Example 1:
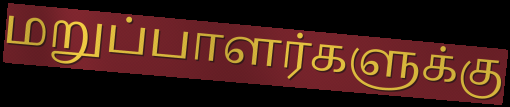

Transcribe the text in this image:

மறுப்பாளர்களுக்கு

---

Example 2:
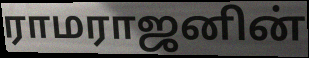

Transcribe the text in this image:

ராமராஜனின்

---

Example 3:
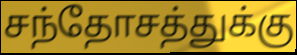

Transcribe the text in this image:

சந்தோசத்துக்கு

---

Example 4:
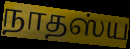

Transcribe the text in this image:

நாதஸ்ய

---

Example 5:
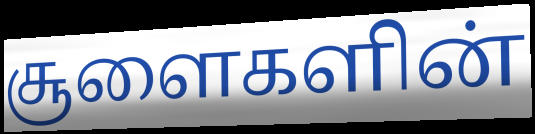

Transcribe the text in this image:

சூளைகளின்